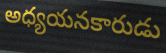
అధ్యయనకారుడు